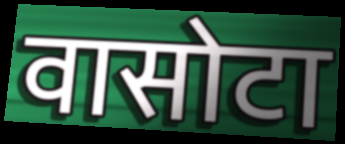
वासोटा